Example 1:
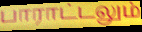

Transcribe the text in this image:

பாராட்டலும்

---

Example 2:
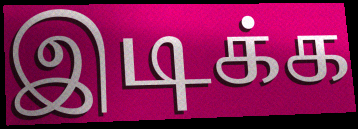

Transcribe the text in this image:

இடிக்க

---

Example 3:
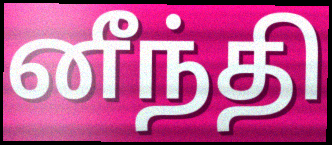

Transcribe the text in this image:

னீந்தி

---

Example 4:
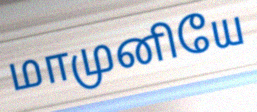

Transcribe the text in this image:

மாமுனியே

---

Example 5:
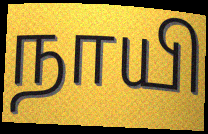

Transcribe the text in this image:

நாயி